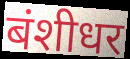
बंशीधर